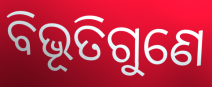
ବିଭୂତିଗୁଣେ